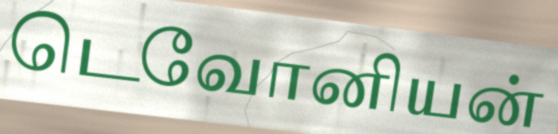
டெவோனியன்